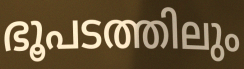
ഭൂപടത്തിലും